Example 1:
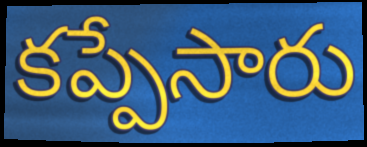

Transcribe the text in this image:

కప్పేసారు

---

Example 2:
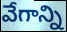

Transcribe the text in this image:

వేగాన్ని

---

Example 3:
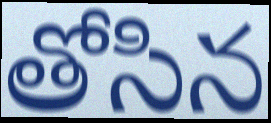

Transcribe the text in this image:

తోసిన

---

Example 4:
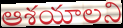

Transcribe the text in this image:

ఆశయాలని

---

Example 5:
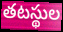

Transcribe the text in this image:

తటస్థుల